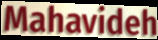
Mahavideh